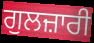
ਗੁਲਜ਼ਾਰੀ